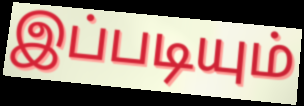
இப்படியும்